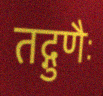
तद्गुणैः